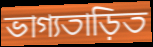
ভাগ্যতাড়িত